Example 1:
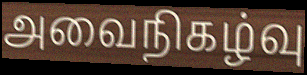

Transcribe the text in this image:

அவைநிகழ்வு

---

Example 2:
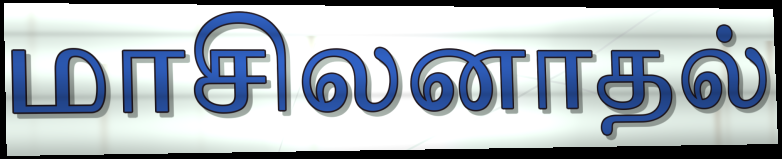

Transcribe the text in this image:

மாசிலனாதல்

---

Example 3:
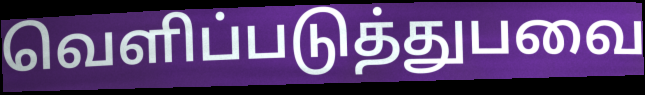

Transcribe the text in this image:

வெளிப்படுத்துபவை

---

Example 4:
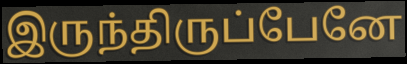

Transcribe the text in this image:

இருந்திருப்பேனே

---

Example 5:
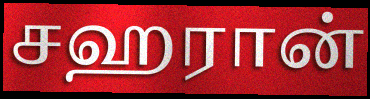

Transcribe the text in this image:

சஹரான்